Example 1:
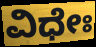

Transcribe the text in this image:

ವಿಧೇಃ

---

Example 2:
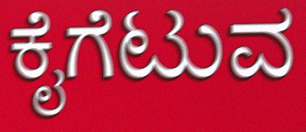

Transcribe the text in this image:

ಕೈಗೆಟುವ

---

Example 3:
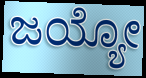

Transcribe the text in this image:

ಜಯ್ಯೋ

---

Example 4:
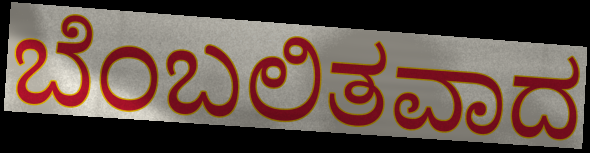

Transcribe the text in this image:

ಬೆಂಬಲಿತವಾದ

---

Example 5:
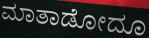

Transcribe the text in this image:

ಮಾತಾಡೋದೂ